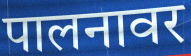
पालनावर